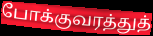
போக்குவரத்துத்